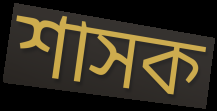
শাসক